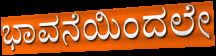
ಭಾವನೆಯಿಂದಲೇ